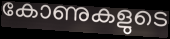
കോണുകളുടെ